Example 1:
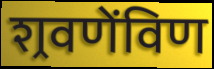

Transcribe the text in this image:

श्रवणेंविण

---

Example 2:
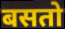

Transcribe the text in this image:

बसतो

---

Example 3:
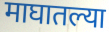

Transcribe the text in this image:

माघातल्या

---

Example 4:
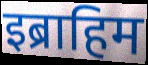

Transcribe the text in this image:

इब्राहिम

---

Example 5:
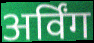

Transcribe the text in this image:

अर्विंग